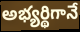
అభ్యర్థిగానే